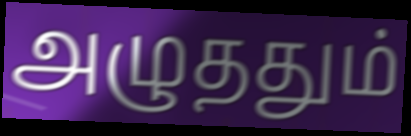
அழுததும்